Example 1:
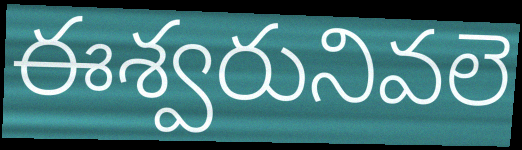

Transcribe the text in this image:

ఈశ్వరునివలె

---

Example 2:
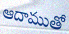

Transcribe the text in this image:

ఆదాముతో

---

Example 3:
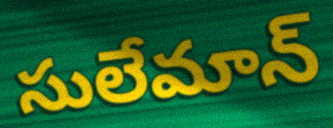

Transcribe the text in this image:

సులేమాన్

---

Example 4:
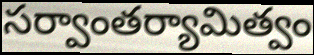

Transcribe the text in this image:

సర్వాంతర్యామిత్వం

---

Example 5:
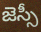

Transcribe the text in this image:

జెస్సీ